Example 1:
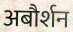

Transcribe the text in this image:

अबौर्शन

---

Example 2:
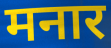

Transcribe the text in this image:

मनार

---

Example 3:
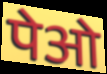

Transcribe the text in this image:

पेओ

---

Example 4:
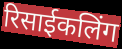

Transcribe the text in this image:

रिसाईकलिंग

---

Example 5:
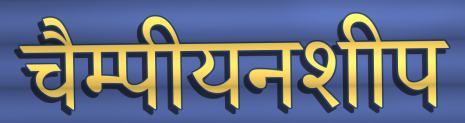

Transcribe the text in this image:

चैम्पीयनशीप